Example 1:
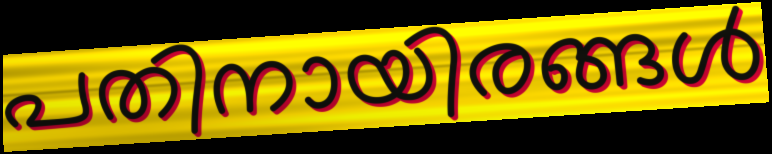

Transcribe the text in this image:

പതിനായിരങ്ങൾ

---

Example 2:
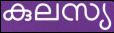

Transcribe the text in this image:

കുലസ്യ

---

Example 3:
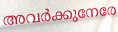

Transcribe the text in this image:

അവർക്കുനേരേ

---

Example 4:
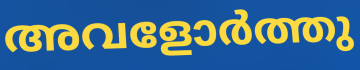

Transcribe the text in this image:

അവളോർത്തു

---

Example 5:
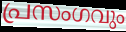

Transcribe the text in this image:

പ്രസംഗവും